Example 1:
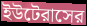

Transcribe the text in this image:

ইউটেরাসের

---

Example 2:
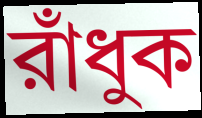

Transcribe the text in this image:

রাঁধুক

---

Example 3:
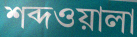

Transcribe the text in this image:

শব্দওয়ালা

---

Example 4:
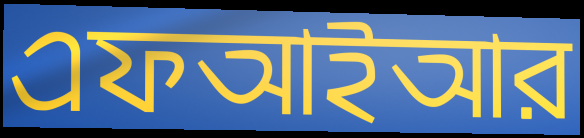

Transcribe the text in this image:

এফআইআর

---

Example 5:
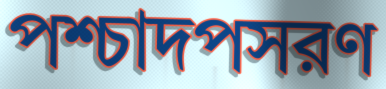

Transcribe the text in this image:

পশ্চাদপসরণ